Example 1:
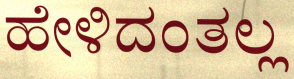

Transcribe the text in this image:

ಹೇಳಿದಂತಲ್ಲ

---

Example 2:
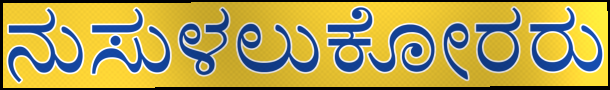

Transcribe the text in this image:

ನುಸುಳಲುಕೋರರು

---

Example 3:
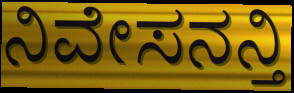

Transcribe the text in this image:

ನಿವೇಸನನ್ತಿ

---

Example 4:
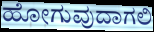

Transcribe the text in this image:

ಹೋಗುವುದಾಗಲಿ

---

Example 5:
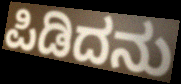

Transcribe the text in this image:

ಪಿಡಿದನು